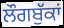
ਲੌਗਬੁੱਕਾਂ